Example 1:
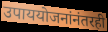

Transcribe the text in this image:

उपाययोजनांनंतरही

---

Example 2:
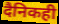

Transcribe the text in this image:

दैनिकही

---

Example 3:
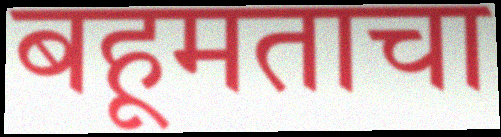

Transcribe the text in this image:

बहूमताचा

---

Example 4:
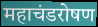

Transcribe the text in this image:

महाचंडरोषण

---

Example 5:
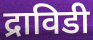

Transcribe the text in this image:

द्राविडी